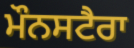
ਮੌਨਸਟੈਰਾ